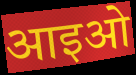
आइओ